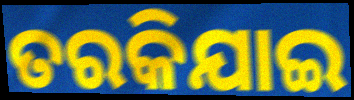
ତରକିଯାଇ